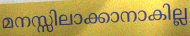
മനസ്സിലാക്കാനാകില്ല